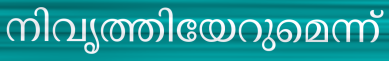
നിവൃത്തിയേറുമെന്ന്